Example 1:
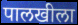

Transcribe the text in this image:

पालखीला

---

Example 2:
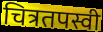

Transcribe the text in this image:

चित्रतपस्वी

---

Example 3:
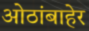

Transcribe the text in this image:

ओठांबाहेर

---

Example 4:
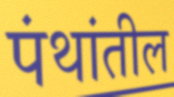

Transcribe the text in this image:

पंथांतील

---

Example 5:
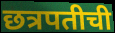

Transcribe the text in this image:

छत्रपतीची